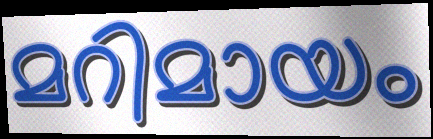
മറിമായം